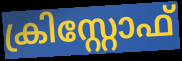
ക്രിസ്റ്റോഫ്